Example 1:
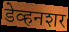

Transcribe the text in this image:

डेव्हनशर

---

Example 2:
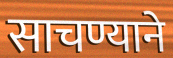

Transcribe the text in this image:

साचण्याने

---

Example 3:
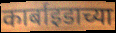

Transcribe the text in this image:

कार्बाइडाच्या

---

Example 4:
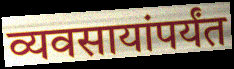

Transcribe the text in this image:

व्यवसायांपर्यंत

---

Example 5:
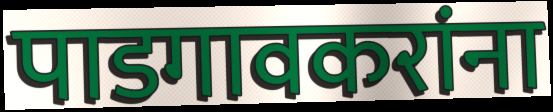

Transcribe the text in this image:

पाडगावकरांना